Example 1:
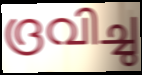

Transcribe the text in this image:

ദ്രവിച്ചു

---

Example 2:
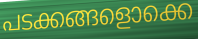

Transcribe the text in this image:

പടക്കങ്ങളൊക്കെ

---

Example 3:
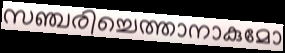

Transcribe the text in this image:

സഞ്ചരിച്ചെത്താനാകുമോ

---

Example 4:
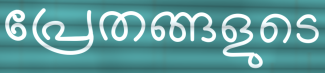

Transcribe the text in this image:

പ്രേതങ്ങളുടെ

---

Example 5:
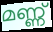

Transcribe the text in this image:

മണ്ണ്